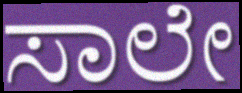
ಸಾಲೇ